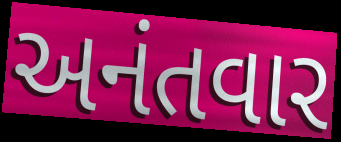
અનંતવાર